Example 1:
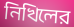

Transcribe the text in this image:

নিখিলের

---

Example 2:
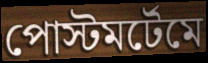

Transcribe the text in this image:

পোস্টমর্টেমে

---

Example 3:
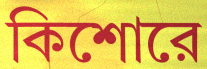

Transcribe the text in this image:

কিশোরে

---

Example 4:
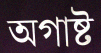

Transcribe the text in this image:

অগাষ্ট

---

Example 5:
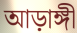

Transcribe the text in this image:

আড়াঙ্গী